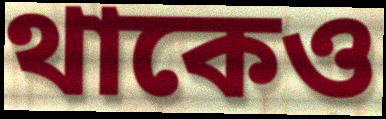
থাকেও